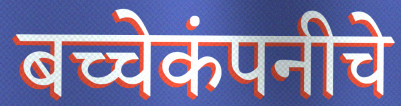
बच्चेकंपनीचे